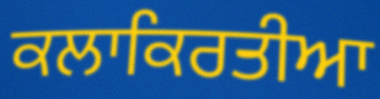
ਕਲਾਕਿਰਤੀਆ